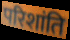
परिशांति